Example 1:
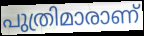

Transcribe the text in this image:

പുത്രിമാരാണ്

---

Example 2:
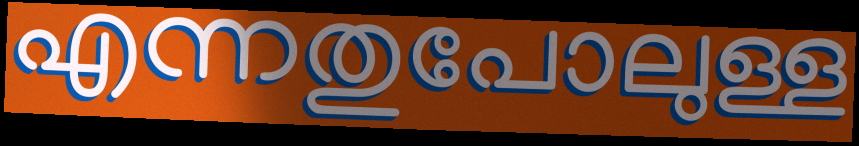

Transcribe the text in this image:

എന്നതുപോലുള്ള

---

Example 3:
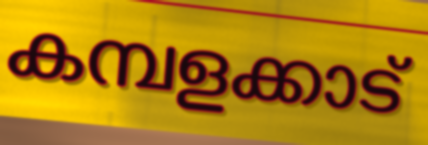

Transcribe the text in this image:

കമ്പളക്കാട്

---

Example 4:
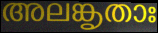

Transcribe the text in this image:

അലങ്കൃതാഃ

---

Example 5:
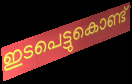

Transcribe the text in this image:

ഇടപെട്ടുകൊണ്ട്